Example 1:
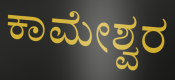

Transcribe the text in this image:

ಕಾಮೇಶ್ವರ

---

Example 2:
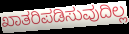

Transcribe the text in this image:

ಖಾತರಿಪಡಿಸುವುದಿಲ್ಲ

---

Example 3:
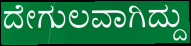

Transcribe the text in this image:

ದೇಗುಲವಾಗಿದ್ದು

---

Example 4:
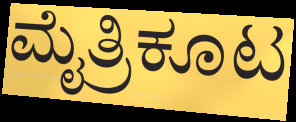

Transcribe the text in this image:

ಮೈತ್ರಿಕೂಟ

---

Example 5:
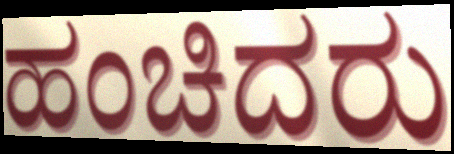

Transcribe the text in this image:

ಹಂಚಿದರು